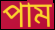
পাম